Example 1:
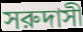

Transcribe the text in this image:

সরুদাসী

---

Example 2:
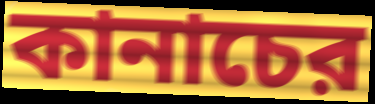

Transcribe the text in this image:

কানাচের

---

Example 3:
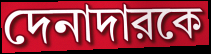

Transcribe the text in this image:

দেনাদারকে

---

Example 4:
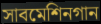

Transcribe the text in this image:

সাবমেশিনগান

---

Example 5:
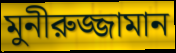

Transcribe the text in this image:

মুনীরুজ্জামান